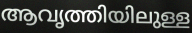
ആവൃത്തിയിലുള്ള